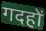
गदहों